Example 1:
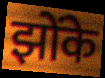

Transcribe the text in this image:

झोंके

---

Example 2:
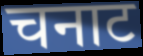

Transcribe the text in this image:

चनाट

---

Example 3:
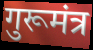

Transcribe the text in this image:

गुरूमंत्र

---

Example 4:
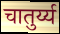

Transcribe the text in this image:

चातुर्य्य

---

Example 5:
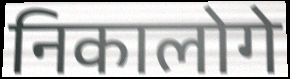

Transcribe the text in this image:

निकालोगे